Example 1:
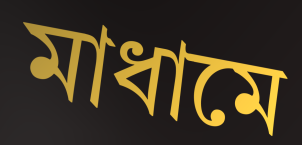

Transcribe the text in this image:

মাধামে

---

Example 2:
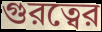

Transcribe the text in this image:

গুরত্বের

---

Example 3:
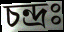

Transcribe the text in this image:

চন্দ্রঃ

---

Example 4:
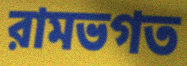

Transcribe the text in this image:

রামভগত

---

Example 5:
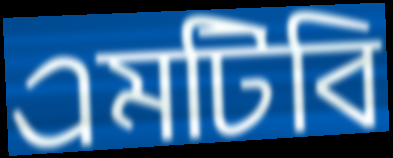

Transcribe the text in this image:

এমটিবি